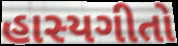
હાસ્યગીતો